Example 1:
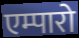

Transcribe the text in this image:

एम्पारो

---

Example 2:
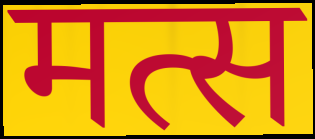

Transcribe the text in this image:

मत्स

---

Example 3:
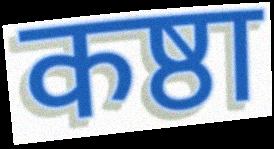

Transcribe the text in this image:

कष्ठा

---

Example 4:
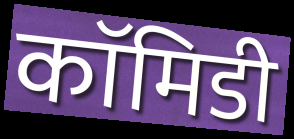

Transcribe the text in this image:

कॉमिडी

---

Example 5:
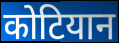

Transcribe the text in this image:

कोटियान